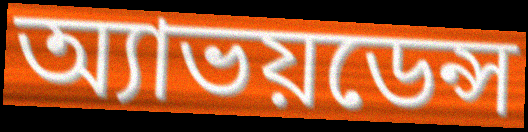
অ্যাভয়ডেন্স